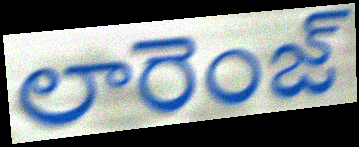
లారెంజ్